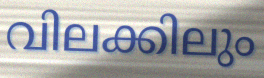
വിലക്കിലും